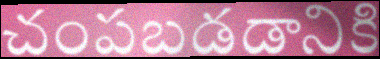
చంపబడడానికి